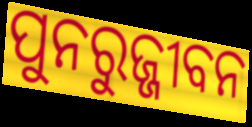
ପୁନରୁଜ୍ଜୀବନ